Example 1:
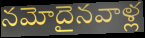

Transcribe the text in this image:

నమోదైనవాళ్ల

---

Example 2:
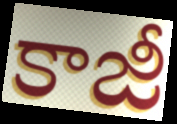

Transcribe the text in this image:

కాజీ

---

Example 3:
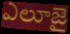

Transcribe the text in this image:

ఎలూజై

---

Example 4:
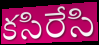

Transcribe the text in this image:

కసిరేసి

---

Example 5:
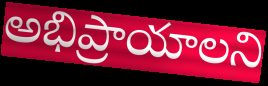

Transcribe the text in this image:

అభిప్రాయాలని